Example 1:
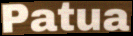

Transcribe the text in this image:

Patua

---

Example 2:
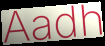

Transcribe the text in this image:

Aadh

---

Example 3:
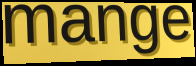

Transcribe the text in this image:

mange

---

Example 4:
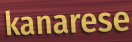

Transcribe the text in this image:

kanarese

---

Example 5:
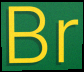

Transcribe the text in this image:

Br